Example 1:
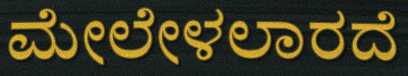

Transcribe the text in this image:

ಮೇಲೇಳಲಾರದೆ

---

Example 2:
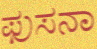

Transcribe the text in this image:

ಫುಸನಾ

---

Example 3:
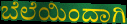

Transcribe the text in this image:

ಬೆಲೆಯಿಂದಾಗಿ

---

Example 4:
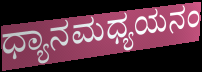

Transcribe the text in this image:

ಧ್ಯಾನಮಧ್ಯಯನಂ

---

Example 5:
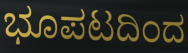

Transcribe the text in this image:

ಭೂಪಟದಿಂದ